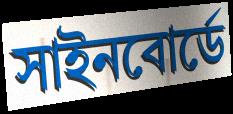
সাইনবোর্ডে